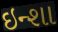
ઇન્શા